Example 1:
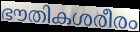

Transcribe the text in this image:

ഭൗതികശരീരം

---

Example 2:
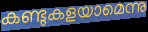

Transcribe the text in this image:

കണ്ടുകളയാമെന്നു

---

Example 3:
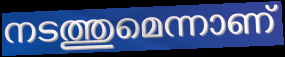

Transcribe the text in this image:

നടത്തുമെന്നാണ്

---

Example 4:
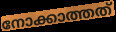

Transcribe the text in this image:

നോക്കാത്തത്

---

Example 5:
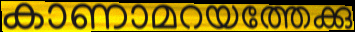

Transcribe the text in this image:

കാണാമറയത്തേക്കു